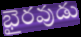
భైరవుడు